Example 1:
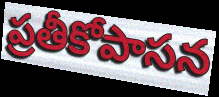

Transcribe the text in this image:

ప్రతీకోపాసన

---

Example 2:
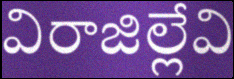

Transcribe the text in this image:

విరాజిల్లేవి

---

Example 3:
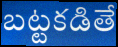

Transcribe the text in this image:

బట్టకడితే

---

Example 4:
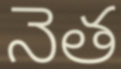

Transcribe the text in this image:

నెత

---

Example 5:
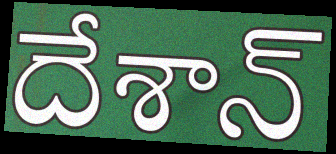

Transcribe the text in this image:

దేశాన్